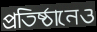
প্রতিষ্ঠানেও